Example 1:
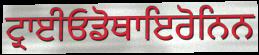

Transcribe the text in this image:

ਟ੍ਰਾਈਓਡੋਥਾਇਰੋਨਿਨ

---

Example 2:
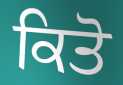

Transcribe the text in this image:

ਕਿਤੋ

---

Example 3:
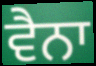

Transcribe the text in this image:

ਵੈਨਾ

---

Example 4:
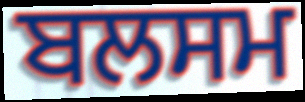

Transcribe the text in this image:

ਬਲਸਮ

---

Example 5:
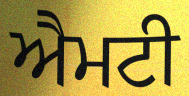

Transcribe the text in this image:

ਐਮਟੀ